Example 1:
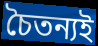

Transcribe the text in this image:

চৈতন্যই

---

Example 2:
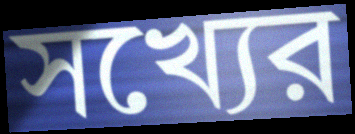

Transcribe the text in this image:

সখ্যের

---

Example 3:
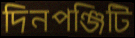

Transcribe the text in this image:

দিনপঞ্জিটি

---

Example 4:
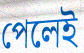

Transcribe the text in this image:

পেলেই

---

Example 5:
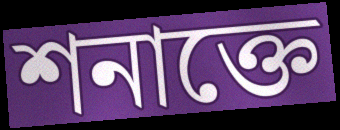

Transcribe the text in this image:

শনাক্তে